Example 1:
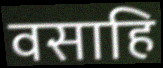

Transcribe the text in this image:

वसाहि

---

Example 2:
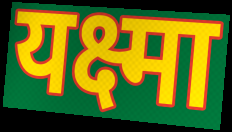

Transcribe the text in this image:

यक्ष्मा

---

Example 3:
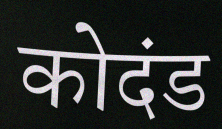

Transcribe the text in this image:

कोदंड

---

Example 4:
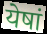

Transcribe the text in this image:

येषां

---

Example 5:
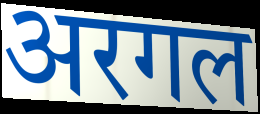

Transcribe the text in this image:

अरगल